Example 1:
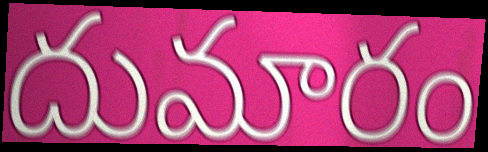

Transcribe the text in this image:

దుమారం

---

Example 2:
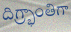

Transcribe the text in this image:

దిగ్ర్భాంతిగా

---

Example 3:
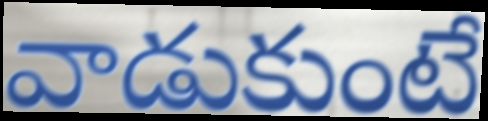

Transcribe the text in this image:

వాడుకుంటే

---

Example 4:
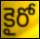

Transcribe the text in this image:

కైరో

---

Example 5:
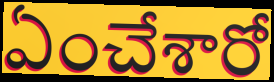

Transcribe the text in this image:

ఏంచేశారో